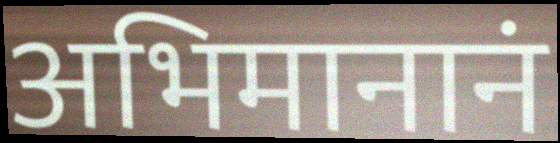
अभिमानानं